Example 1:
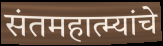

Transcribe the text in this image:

संतमहात्म्यांचे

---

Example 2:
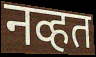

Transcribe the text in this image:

नव्हत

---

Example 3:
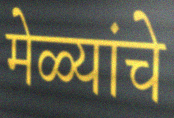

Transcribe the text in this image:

मेळ्यांचे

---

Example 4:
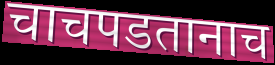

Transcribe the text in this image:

चाचपडतानाच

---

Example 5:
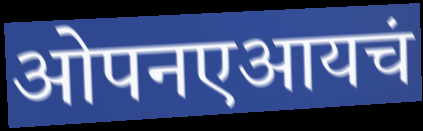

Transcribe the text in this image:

ओपनएआयचं